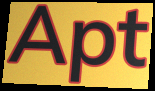
Apt